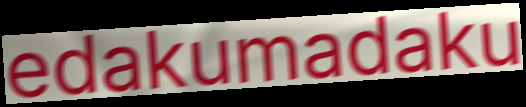
edakumadaku